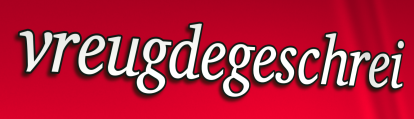
vreugdegeschrei